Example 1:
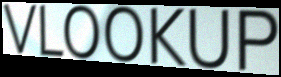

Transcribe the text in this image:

VLOOKUP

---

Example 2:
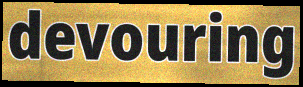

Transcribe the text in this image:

devouring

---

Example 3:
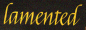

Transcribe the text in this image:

lamented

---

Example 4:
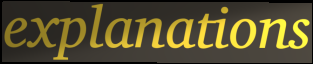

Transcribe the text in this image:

explanations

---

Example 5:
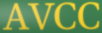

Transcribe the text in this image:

AVCC